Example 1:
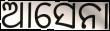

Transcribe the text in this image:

ଆସେନା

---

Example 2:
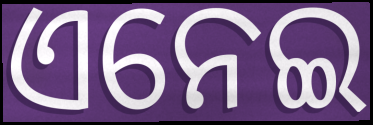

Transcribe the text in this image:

ଏନେଇ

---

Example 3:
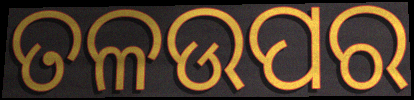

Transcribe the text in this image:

ତଳଉପର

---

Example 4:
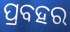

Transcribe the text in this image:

ପ୍ରବହର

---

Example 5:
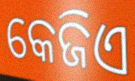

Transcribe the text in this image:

କେଜିଏ